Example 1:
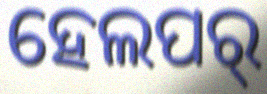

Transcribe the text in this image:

ହେଲପର୍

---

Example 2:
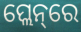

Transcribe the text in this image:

ପ୍ଲେନ୍‌ରେ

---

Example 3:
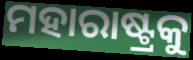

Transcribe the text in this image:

ମହାରାଷ୍ଟ୍ରକୁ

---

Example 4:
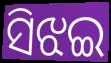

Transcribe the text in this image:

ସିଝଇ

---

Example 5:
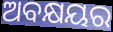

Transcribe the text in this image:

ଅବକ୍ଷୟର